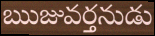
ఋజువర్తనుడు